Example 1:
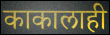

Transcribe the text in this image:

काकालाही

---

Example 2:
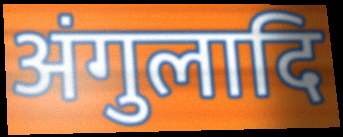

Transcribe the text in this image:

अंगुलादि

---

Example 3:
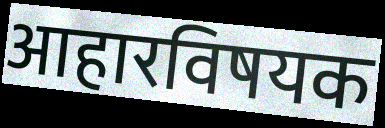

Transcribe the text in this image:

आहारविषयक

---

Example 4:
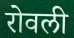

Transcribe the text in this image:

रोवली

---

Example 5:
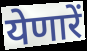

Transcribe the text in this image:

येणारें